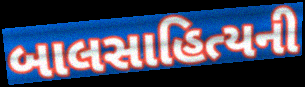
બાલસાહિત્યની